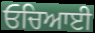
ਓਚਿਆਈ